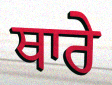
ਥਾਰੇ